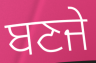
ਬਣਜੇ